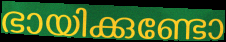
ഭായിക്കുണ്ടോ